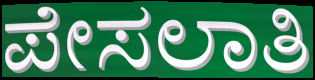
ಪೇಸಲಾತಿ